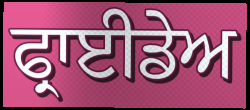
ਫ੍ਰਾਈਡੇਅ